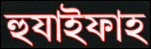
হুযাইফাহ